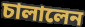
চালালেন